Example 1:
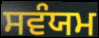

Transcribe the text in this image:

ਸਵੰਯਮ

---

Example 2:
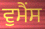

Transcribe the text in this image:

ਵੁਮੈਂਸ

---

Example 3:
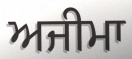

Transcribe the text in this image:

ਅਜੀਮਾ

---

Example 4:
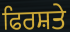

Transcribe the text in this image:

ਫਿਰਸ਼ਤੇ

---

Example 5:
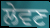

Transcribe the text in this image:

ਲੇਵਣ